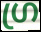
ഗ്ര